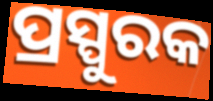
ପ୍ରସ୍ପୁରକ